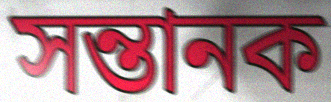
সন্তানক